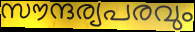
സൗന്ദര്യപരവും